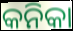
କନିକା